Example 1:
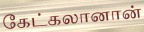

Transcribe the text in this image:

கேட்கலானான்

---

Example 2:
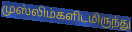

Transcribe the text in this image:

முஸ்லிம்களிடமிருந்து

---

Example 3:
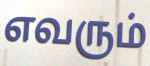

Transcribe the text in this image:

எவரும்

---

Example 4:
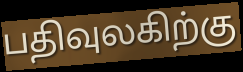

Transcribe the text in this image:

பதிவுலகிற்கு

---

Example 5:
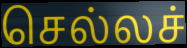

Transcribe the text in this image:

செல்லச்